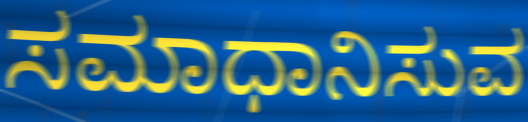
ಸಮಾಧಾನಿಸುವ